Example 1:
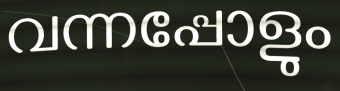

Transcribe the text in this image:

വന്നപ്പോളും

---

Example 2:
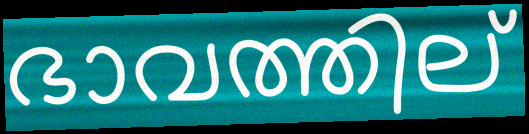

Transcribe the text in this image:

ഭാവത്തില്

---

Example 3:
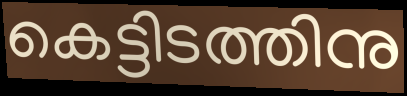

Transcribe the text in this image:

കെട്ടിടത്തിനു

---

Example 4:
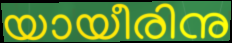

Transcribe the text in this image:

യായീരിനു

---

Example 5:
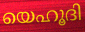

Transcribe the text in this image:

യെഹൂദി